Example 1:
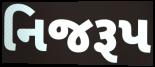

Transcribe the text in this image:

નિજરૂપ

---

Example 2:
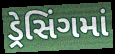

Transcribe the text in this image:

ડ્રેસિંગમાં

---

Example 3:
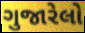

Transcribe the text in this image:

ગુજારેલો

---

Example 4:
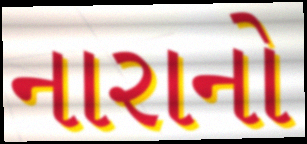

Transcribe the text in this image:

નારાનો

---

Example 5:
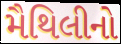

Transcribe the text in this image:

મૈથિલીનો